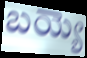
బయ్యె